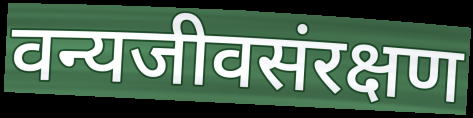
वन्यजीवसंरक्षण